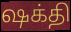
ஷக்தி